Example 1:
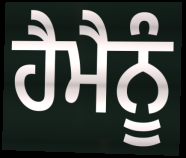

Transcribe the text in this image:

ਹੈਮੈਨੂੰ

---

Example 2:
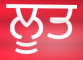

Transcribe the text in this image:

ਲੂਤ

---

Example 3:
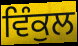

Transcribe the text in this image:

ਵਿੰਕੁਲ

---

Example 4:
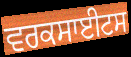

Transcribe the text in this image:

ਵਰਕਸਾਈਟਸ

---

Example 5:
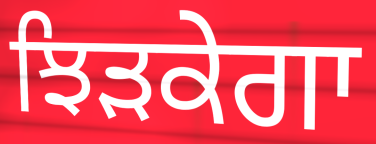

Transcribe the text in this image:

ਝਿੜਕੇਗਾ